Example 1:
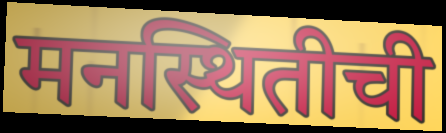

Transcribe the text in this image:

मनस्थितीची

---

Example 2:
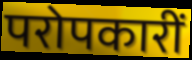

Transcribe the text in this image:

परोपकारीं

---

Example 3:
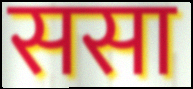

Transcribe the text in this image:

ससा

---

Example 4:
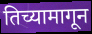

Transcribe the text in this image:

तिच्यामागून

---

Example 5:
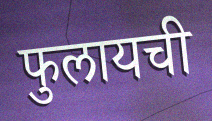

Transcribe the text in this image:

फुलायची